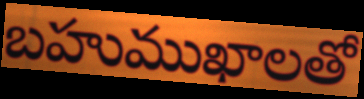
బహుముఖాలతో